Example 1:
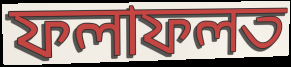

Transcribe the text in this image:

ফলাফলত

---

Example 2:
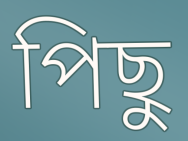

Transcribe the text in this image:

পিছু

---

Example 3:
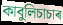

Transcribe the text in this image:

কাবুলিচাচাৰ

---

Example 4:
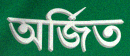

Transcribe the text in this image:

অৰ্জিত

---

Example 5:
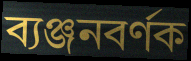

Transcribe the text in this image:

ব্যঞ্জনবৰ্ণক